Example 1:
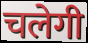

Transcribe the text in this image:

चलेगी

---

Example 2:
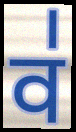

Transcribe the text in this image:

व॑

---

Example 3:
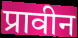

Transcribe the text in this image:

प्रावीन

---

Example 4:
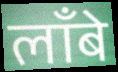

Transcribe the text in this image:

लाँबे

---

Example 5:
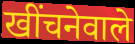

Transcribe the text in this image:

खींचनेवाले